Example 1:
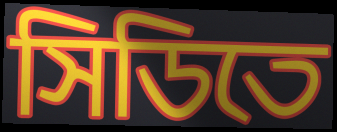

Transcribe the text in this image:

সিডিতে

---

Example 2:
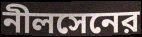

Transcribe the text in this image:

নীলসেনের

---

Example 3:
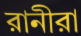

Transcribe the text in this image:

রানীরা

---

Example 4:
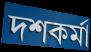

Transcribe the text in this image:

দশকর্মা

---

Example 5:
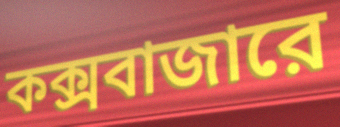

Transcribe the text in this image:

কক্সবাজারে